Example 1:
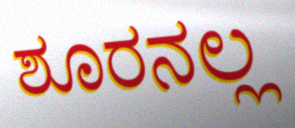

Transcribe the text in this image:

ಶೂರನಲ್ಲ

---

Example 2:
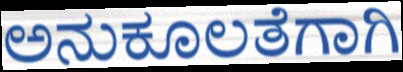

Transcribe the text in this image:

ಅನುಕೂಲತೆಗಾಗಿ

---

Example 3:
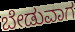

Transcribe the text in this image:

ಬೇಡುವಾಗ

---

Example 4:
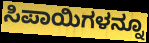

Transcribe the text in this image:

ಸಿಪಾಯಿಗಳನ್ನೂ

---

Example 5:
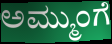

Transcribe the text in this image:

ಅಮ್ಮುಂಗೆ